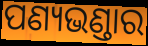
ପଣ୍ୟଭଣ୍ଡାର